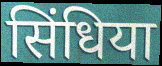
सिंधिया